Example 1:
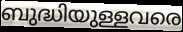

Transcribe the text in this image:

ബുദ്ധിയുള്ളവരെ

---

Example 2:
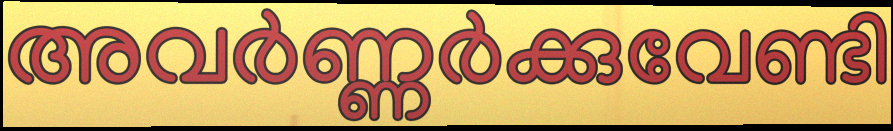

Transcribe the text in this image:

അവർണ്ണർക്കുവേണ്ടി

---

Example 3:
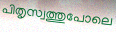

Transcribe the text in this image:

പിതൃസ്വത്തുപോലെ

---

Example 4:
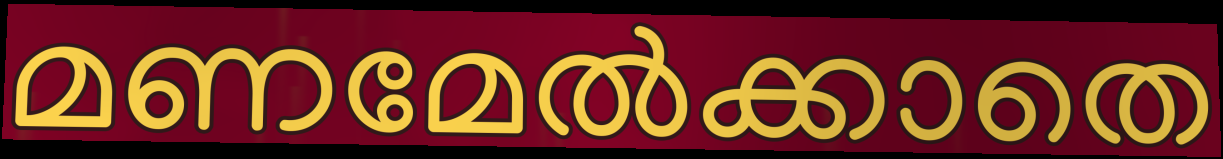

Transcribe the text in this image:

മണമേൽക്കാതെ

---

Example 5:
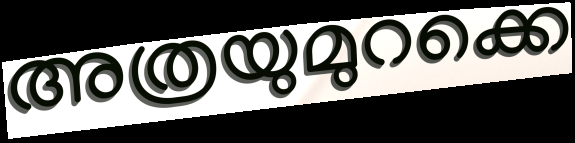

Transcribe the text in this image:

അത്രയുമുറക്കെ